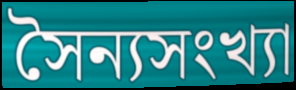
সৈন্যসংখ্যা